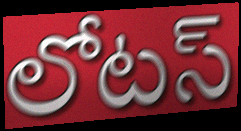
లోటస్